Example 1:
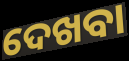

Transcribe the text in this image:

ଦେଖବା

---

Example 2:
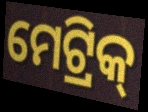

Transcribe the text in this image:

ମେଟ୍ରିକ୍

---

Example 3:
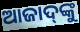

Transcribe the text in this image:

ଆଜାଦ୍‌ଙ୍କୁ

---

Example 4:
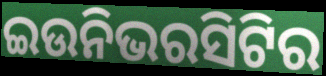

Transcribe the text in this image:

ଇଉନିଭରସିଟିର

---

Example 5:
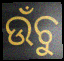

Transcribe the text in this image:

ଉଁଚୁ